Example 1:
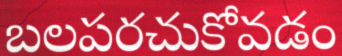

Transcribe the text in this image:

బలపరచుకోవడం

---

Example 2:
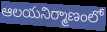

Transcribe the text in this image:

ఆలయనిర్మాణంలో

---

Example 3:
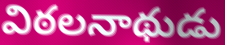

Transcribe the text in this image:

విఠలనాథుడు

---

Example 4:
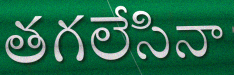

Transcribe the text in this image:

తగలేసినా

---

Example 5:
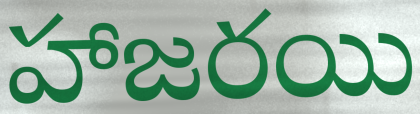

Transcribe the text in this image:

హాజరయి